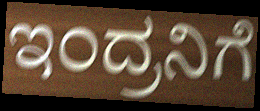
ಇಂದ್ರನಿಗೆ